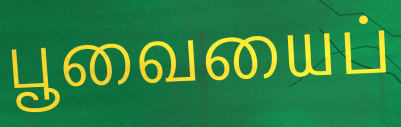
பூவையைப்